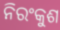
ନିରଂକୁଶ